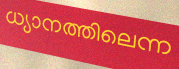
ധ്യാനത്തിലെന്ന